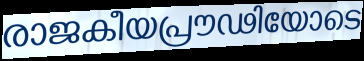
രാജകീയപ്രൗഢിയോടെ